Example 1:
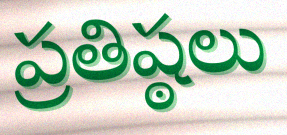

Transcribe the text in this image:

ప్రతిష్ఠలు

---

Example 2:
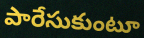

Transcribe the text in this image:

పారేసుకుంటూ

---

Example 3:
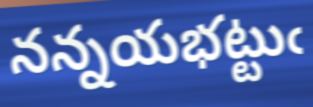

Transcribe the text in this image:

నన్నయభట్టుఁ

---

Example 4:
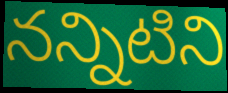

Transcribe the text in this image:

నన్నిటిని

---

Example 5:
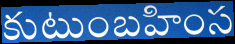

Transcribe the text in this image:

కుటుంబహింస